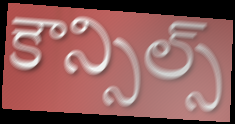
కౌన్సిల్స్